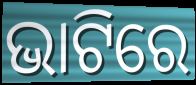
ଭାଟିରେ